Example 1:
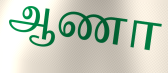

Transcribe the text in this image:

ஆணா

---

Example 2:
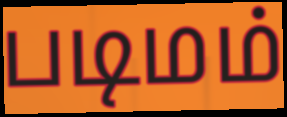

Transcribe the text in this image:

படிமம்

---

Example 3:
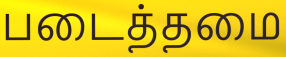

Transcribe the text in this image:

படைத்தமை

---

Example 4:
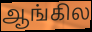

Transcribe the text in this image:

ஆங்கில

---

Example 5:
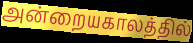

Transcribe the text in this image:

அன்றையகாலத்தில்